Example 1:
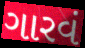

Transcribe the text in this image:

ગારવં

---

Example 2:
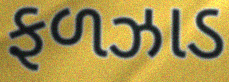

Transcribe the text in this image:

ફળઝાડ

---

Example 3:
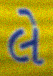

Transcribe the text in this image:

લે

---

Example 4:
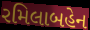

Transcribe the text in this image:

રમિલાબહેન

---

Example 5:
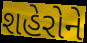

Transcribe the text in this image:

શહેરોને